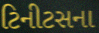
ટિનીટસના